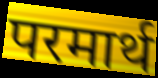
परमार्थ